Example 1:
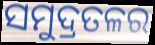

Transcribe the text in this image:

ସମୁଦ୍ରତଳର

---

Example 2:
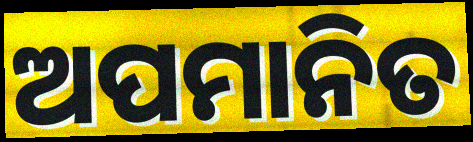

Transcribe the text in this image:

ଅପମାନିତ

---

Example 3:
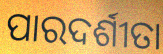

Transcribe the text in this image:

ପାରଦର୍ଶୀତା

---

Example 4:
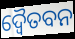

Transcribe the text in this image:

ଦ୍ୱୈତବନ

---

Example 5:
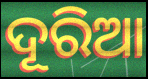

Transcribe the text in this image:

ଦୂରିଆ